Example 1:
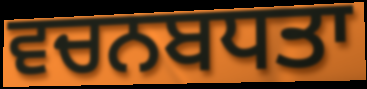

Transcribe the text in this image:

ਵਚਨਬਧਤਾ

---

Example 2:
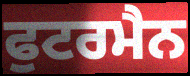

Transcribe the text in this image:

ਫੁਟਰਮੈਨ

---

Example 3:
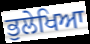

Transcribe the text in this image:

ਭੁਲੇਖਿਆ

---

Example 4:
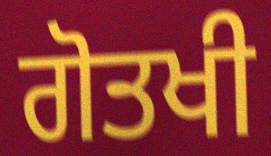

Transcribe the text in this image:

ਗੋਤਖੀ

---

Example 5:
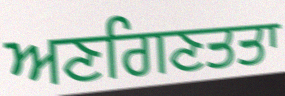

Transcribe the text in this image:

ਅਣਗਿਣਤਤਾ